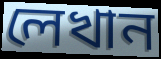
লেখান